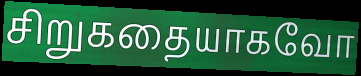
சிறுகதையாகவோ